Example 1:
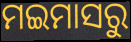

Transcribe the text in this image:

ମଇମାସରୁ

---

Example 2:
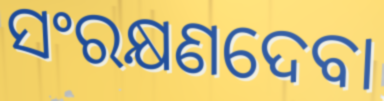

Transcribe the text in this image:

ସଂରକ୍ଷଣଦେବା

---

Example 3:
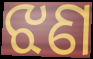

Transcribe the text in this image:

ଝଣ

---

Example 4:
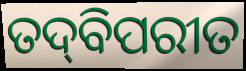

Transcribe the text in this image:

ତଦ୍‍ବିପରୀତ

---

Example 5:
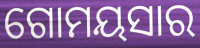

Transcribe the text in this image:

ଗୋମୟସାର